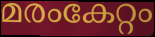
മരംകേറ്റം